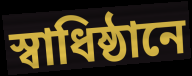
স্বাধিষ্ঠানে